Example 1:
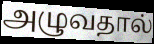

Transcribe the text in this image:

அழுவதால்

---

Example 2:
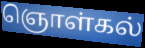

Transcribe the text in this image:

ஞொள்கல்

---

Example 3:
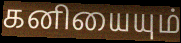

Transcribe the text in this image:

கனியையும்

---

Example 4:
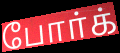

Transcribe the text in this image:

போர்க்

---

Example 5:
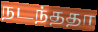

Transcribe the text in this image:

நடந்ததா